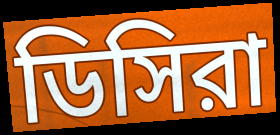
ডিসিরা